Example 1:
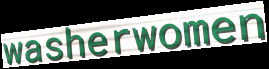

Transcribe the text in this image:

washerwomen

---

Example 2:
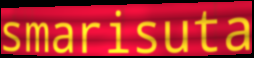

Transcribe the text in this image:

smarisuta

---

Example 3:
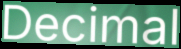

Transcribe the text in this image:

Decimal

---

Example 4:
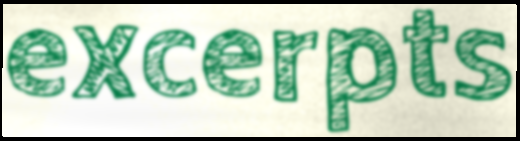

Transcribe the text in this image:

excerpts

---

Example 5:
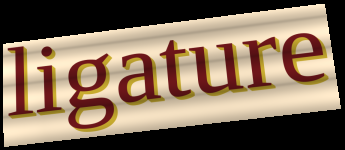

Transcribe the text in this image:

ligature